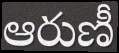
ఆరుణీ